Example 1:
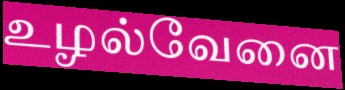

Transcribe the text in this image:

உழல்வேனை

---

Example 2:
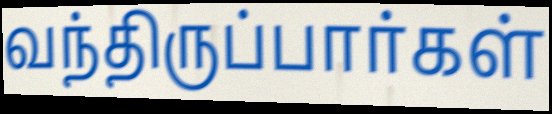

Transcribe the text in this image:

வந்திருப்பார்கள்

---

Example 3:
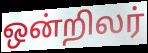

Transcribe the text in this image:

ஒன்றிலர்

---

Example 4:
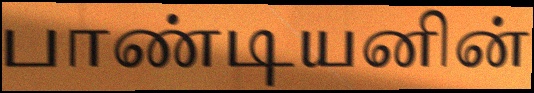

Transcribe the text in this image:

பாண்டியனின்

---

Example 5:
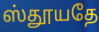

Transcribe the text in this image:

ஸ்தூயதே